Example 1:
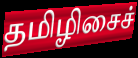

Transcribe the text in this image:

தமிழிசைச்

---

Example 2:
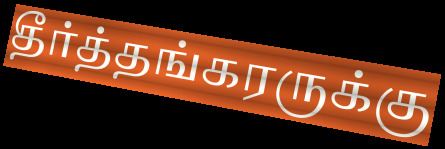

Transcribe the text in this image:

தீர்த்தங்கரருக்கு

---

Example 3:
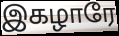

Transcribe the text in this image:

இகழாரே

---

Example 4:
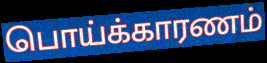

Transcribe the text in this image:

பொய்க்காரணம்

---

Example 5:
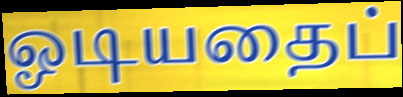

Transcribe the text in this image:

ஓடியதைப்